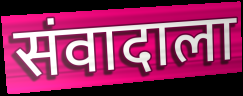
संवादाला